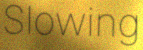
Slowing